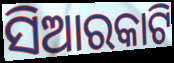
ସିଆରକାଟି